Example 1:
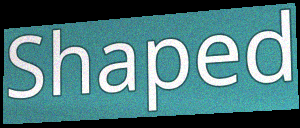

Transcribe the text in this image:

Shaped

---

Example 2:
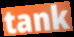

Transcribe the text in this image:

tank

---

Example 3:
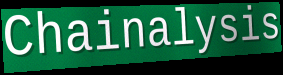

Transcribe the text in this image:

Chainalysis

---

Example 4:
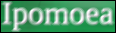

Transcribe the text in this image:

Ipomoea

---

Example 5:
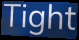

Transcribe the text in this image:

Tight